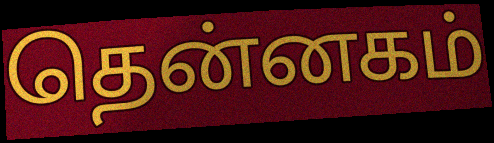
தென்னகம்